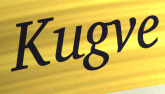
Kugve